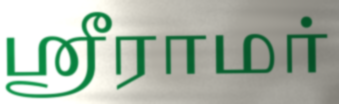
ஶ்ரீராமர்